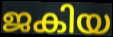
ജകിയ